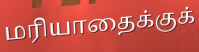
மரியாதைக்குக்